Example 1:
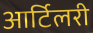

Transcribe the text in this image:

आर्टिलरी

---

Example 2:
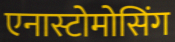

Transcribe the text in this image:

एनास्टोमोसिंग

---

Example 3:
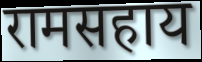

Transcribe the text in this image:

रामसहाय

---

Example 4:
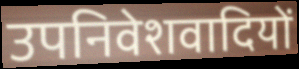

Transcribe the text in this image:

उपनिवेशवादियों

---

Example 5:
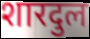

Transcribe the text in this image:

शारदुल